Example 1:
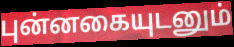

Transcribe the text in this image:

புன்னகையுடனும்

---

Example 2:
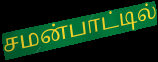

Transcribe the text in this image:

சமன்பாட்டில்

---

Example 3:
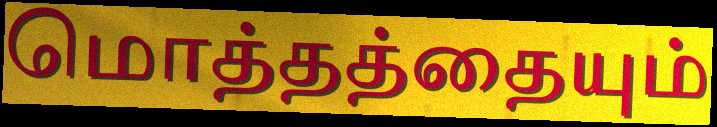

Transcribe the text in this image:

மொத்தத்தையும்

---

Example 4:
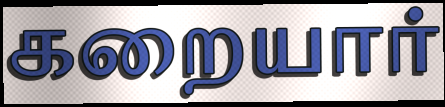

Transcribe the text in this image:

கறையார்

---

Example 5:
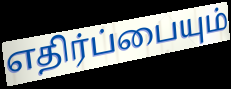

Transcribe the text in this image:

எதிர்ப்பையும்